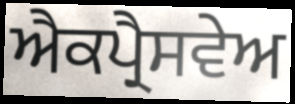
ਐਕਪ੍ਰੈਸਵੇਅ